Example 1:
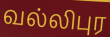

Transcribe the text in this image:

வல்லிபுர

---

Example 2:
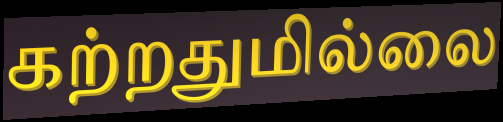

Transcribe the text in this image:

கற்றதுமில்லை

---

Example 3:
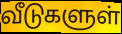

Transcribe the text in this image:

வீடுகளுள்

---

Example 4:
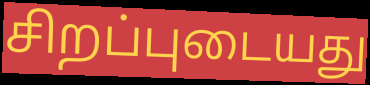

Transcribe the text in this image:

சிறப்புடையது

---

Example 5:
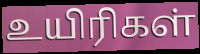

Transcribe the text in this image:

உயிரிகள்